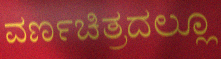
ವರ್ಣಚಿತ್ರದಲ್ಲೂ